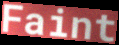
Faint